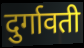
दुर्गावती